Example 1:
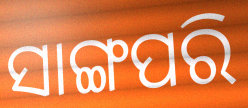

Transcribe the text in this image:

ସାଙ୍ଗପରି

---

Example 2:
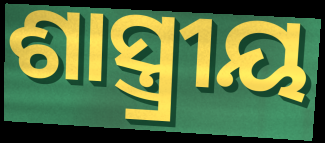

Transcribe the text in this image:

ଶାସ୍ତ୍ର୍ରୀୟ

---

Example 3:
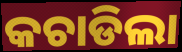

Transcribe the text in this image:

କଚାଡିଲା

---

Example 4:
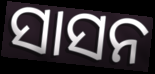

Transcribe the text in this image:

ସାସନ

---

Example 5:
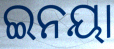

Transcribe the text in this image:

ଇନୟା